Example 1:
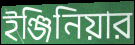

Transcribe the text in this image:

ইঞ্জিনিয়ার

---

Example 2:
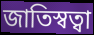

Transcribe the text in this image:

জাতিস্বত্বা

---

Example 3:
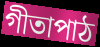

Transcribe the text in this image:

গীতাপাঠ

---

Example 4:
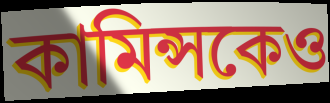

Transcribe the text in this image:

কামিন্সকেও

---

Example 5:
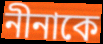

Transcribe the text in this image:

নীনাকে